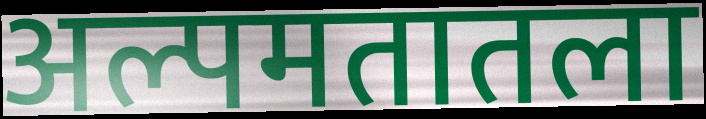
अल्पमतातला